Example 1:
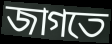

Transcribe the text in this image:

জাগতে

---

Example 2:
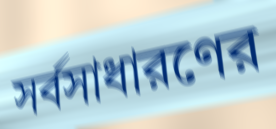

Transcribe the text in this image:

সর্বসাধারণের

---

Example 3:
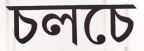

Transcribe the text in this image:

চলচে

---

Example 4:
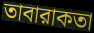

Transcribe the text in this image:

তাবারাকতা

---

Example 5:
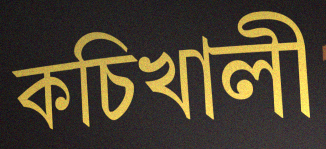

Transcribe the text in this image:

কচিখালী